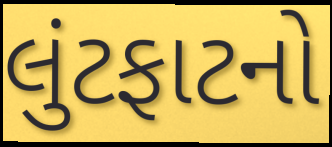
લુંટફાટનો